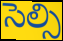
సెల్సి